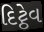
દિટ્ઠેવ